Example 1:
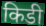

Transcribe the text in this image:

किडी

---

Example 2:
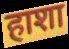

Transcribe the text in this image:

हाशा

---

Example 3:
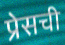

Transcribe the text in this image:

प्रेसची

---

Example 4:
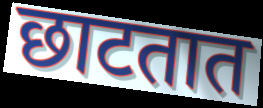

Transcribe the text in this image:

छाटतात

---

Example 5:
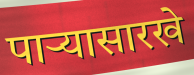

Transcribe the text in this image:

पाऱ्यासारखे